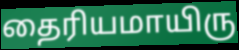
தைரியமாயிரு